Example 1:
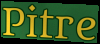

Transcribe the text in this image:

Pitre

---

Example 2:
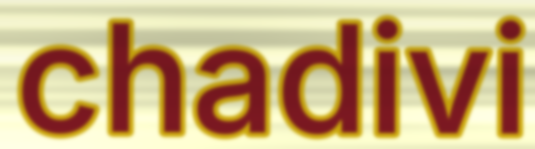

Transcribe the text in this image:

chadivi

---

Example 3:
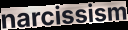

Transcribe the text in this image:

narcissism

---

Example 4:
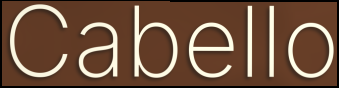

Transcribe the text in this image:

Cabello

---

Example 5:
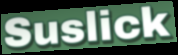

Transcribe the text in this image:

Suslick